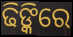
ଢିଙ୍କିରେ